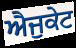
ਐਜੁਕੇਟ